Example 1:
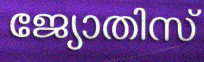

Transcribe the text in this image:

ജ്യോതിസ്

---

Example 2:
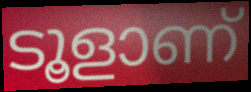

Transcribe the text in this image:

ടൂളാണ്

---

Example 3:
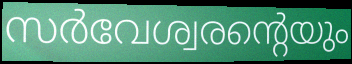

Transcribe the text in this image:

സർവേശ്വരന്റെയും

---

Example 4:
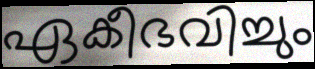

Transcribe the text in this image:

ഏകീഭവിച്ചും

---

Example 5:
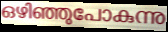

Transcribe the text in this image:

ഒഴിഞ്ഞുപോകുന്നു